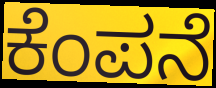
ಕೆಂಪನೆ